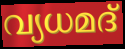
വ്യധമദ്